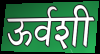
ऊर्वशी